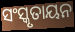
ସଂସ୍କୃତାୟନ